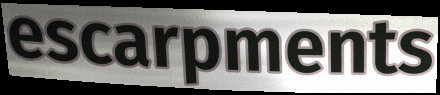
escarpments